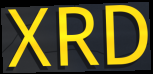
XRD